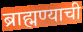
ब्राह्मण्याची